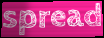
spread